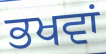
ਭਖਵਾਂ